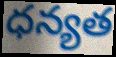
ధన్యత